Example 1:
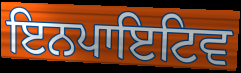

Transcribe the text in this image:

ਇਨਪਾਇਟਿਵ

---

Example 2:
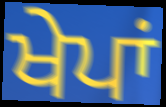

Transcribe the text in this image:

ਖੇਪਾਂ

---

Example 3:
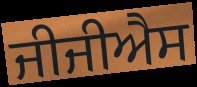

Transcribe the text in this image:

ਜੀਜੀਐਸ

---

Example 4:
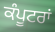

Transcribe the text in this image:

ਕੰਪੂਟਰਾਂ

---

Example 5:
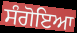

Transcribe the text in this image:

ਸੰਗੋਇਆ